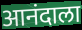
आनंदाला